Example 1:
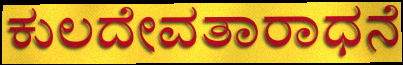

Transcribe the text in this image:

ಕುಲದೇವತಾರಾಧನೆ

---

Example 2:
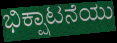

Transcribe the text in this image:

ಭಿಕ್ಷಾಟನೆಯು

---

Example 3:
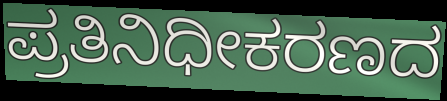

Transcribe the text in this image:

ಪ್ರತಿನಿಧೀಕರಣದ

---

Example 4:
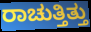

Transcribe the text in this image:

ರಾಚುತ್ತಿತ್ತು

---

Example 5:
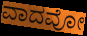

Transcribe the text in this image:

ವಾದವೋ